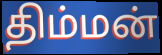
திம்மன்